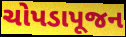
ચોપડાપૂજન